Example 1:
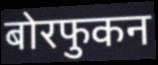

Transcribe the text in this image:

बोरफुकन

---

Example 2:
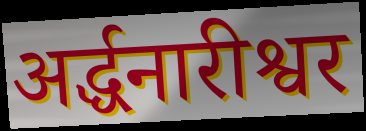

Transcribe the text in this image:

अर्द्धनारीश्वर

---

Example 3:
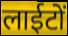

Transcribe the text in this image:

लाईटों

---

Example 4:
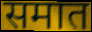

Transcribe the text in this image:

समात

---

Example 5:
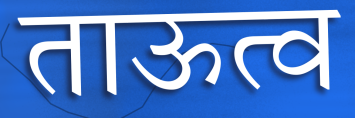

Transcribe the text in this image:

ताऊत्व